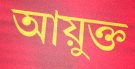
আয়ুক্ত